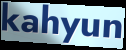
kahyun